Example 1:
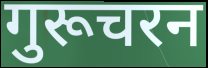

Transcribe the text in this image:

गुरूचरन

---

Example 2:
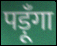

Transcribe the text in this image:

पड़ूँगा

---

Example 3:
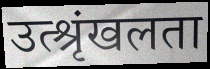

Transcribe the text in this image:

उत्श्रृंखलता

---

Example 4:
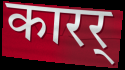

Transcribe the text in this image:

कारर्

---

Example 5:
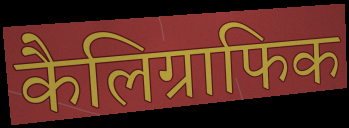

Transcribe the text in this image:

कैलिग्राफिक